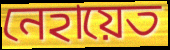
নেহায়েত